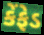
કેંફેડ